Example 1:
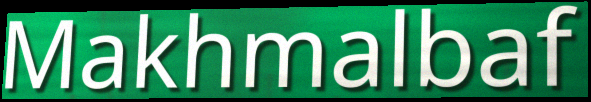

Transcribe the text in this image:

Makhmalbaf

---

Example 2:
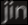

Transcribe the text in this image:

jin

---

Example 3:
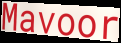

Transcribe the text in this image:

Mavoor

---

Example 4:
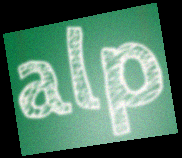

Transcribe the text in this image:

alp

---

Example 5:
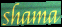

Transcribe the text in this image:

shama